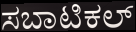
ಸಬಾಟಿಕಲ್